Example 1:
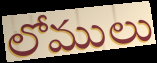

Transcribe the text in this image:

లోములు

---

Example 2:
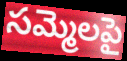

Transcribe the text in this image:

సమ్మెలపై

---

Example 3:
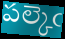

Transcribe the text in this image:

పల్కెఁ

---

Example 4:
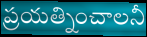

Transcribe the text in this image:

ప్రయత్నించాలనీ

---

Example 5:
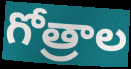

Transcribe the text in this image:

గోత్రాల